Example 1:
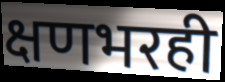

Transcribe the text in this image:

क्षणभरही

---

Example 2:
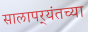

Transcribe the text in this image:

सालापर्यंतच्या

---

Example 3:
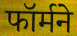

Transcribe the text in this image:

फॉर्मने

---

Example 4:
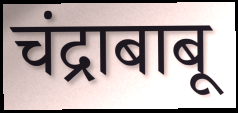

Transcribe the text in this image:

चंद्राबाबू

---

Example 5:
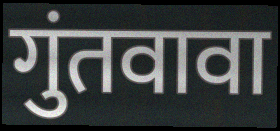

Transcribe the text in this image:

गुंतवावा